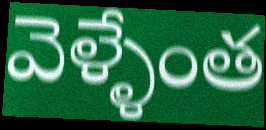
వెళ్ళేంత